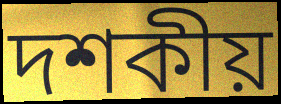
দশকীয়